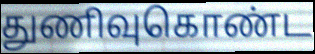
துணிவுகொண்ட